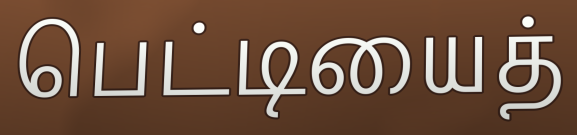
பெட்டியைத்